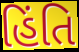
હિંતિ